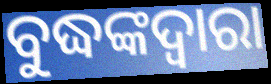
ବୁଦ୍ଧଙ୍କଦ୍ଵାରା